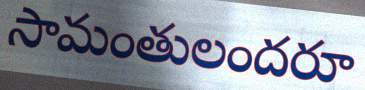
సామంతులందరూ